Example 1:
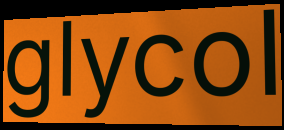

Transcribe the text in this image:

glycol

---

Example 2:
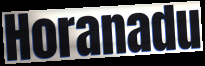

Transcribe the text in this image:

Horanadu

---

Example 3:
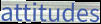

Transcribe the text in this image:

attitudes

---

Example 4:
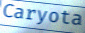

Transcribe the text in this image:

Caryota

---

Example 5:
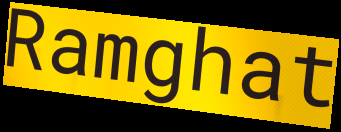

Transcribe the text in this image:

Ramghat